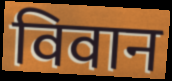
विवान